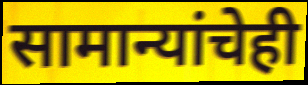
सामान्यांचेही